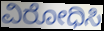
ವಿರೋಧಿಸಿ